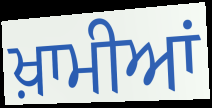
ਖ਼ਾਮੀਆਂ